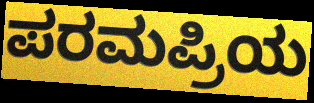
ಪರಮಪ್ರಿಯ